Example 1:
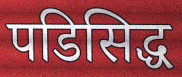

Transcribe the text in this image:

पडिसिद्ध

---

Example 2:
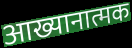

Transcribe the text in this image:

आख्यानात्मक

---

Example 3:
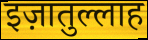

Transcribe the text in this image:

इज़ातुल्लाह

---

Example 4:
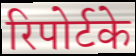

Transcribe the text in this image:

रिपोर्टके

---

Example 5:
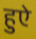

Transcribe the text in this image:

हुऐ